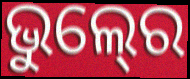
ଭୁଲ୍‍ରେ